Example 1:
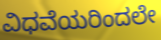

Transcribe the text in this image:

ವಿಧವೆಯರಿಂದಲೇ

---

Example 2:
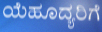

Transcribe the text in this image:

ಯೆಹೂದ್ಯರಿಗೆ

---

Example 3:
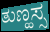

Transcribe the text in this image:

ತುಣ್ಹಸ್ಸ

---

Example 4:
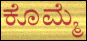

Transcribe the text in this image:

ಕೊಮ್ಮೆ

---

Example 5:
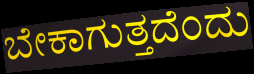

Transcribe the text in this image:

ಬೇಕಾಗುತ್ತದೆಂದು